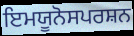
ਇਮਯੂਨੋਸਪਰਸ਼ਨ